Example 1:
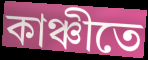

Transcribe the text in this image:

কাঞ্চীতে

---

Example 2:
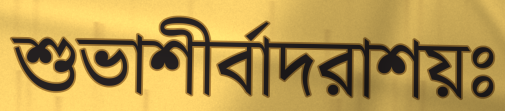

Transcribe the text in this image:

শুভাশীর্বাদরাশয়ঃ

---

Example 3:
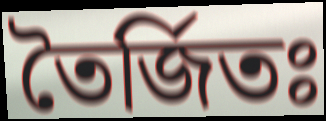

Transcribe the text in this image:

তৈর্জিতঃ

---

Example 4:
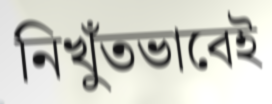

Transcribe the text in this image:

নিখুঁতভাবেই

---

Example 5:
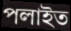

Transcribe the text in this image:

পলাইত